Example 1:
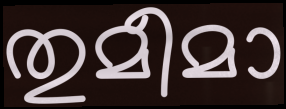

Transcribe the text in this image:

തുമീമാ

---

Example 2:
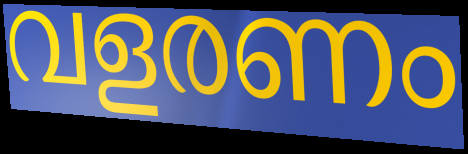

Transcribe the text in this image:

വളരണം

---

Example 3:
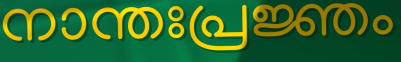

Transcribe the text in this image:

നാന്തഃപ്രജ്ഞം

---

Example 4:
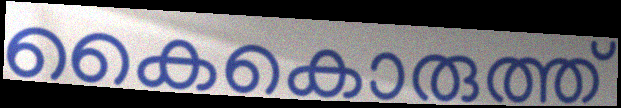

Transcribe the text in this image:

കൈകൊരുത്ത്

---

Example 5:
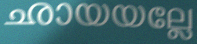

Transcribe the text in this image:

ഛായയല്ലേ